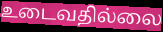
உடைவதில்லை